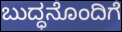
ಬುದ್ಧನೊಂದಿಗೆ